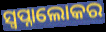
ସ୍ୱପ୍ନାଲୋକର